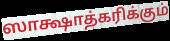
ஸாக்ஷாத்கரிக்கும்